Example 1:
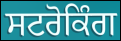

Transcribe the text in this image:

ਸਟਰੋਕਿੰਗ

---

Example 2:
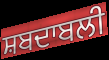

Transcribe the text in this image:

ਸ਼ਬਦਾਬਲੀ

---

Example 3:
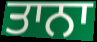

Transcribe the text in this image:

ਤਾਨਾ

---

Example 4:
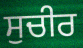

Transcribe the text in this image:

ਸੁਚੀਰ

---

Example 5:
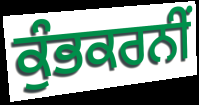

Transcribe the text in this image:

ਕੁੰਭਕਰਨੀਂ